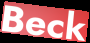
Beck